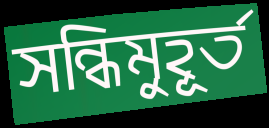
সন্ধিমুহূর্ত